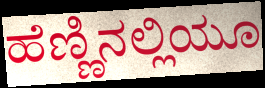
ಹೆಣ್ಣಿನಲ್ಲಿಯೂ